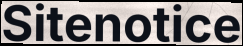
Sitenotice